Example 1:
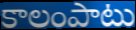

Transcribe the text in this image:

కాలంపాటు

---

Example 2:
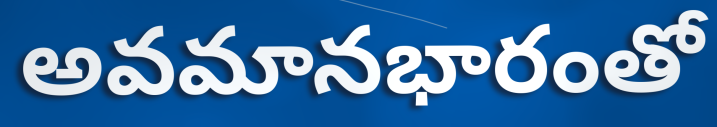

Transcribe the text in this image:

అవమానభారంతో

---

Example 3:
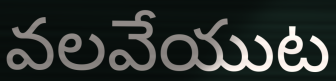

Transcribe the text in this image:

వలవేయుట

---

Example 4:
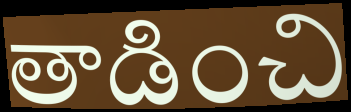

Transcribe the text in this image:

తాడించి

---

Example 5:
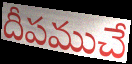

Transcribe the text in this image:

దీపముచే